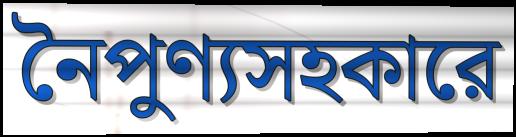
নৈপুণ্যসহকারে